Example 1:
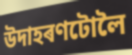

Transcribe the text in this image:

উদাহৰণটোলৈ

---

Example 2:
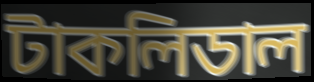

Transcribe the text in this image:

টাকলিডাল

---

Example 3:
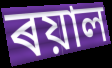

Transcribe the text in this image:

ৰয়াল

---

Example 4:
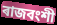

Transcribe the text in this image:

ৰাজবংশী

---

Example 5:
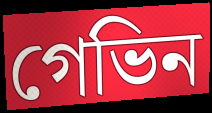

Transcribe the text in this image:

গেভিন